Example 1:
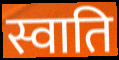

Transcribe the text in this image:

स्वाति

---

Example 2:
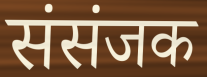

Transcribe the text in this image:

संसंजक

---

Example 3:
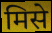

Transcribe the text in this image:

मिसे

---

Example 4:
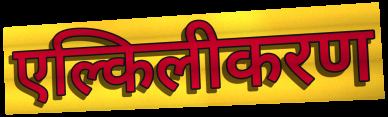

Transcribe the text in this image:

एल्किलीकरण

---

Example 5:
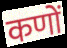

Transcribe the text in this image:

कणों